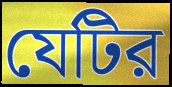
যেটির